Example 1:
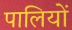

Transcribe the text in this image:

पालियों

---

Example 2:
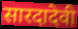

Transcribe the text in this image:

सारदादेवी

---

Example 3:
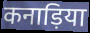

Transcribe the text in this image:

कनाड़िया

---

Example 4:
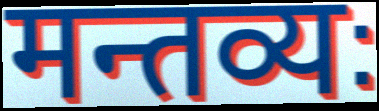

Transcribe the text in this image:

मन्तव्यः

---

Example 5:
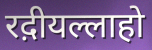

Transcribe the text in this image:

रद़ीयल्लाहो